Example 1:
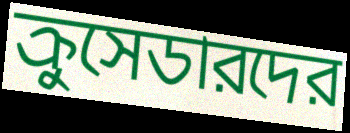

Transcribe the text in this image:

ক্রুসেডারদের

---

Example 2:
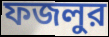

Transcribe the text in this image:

ফজলুর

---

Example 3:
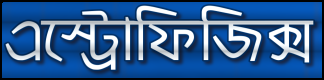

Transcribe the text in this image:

এস্ট্রোফিজিক্স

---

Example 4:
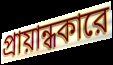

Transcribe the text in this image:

প্রায়ান্ধকারে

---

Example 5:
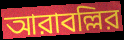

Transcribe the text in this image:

আরাবল্লির